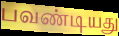
பவண்டியது